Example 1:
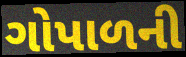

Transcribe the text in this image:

ગોપાળની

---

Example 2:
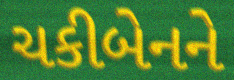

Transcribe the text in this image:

ચકીબેનને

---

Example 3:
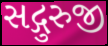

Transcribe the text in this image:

સદ્ગુરુજી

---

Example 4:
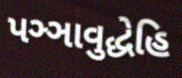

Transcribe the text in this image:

પઞ્ઞાવુદ્ધેહિ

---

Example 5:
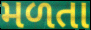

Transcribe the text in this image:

મળતા